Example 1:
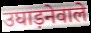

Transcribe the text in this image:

उघाड़नेवाले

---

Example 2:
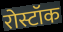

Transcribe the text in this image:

रोस्टॉक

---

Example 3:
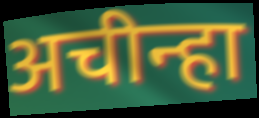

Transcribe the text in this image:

अचीन्हा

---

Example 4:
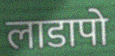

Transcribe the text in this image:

लाडापो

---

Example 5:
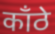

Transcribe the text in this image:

काँठे